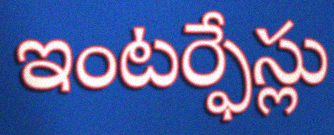
ఇంటర్ఫేస్లు